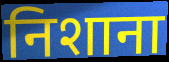
निशाना